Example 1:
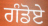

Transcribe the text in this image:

ਗੰਡੋਏ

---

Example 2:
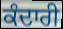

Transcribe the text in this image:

ਕੰਦਾਰੀ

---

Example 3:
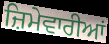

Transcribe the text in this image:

ਜ਼ਿਮੇਵਾਰੀਆਂ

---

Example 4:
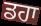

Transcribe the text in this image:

ਡਹਾ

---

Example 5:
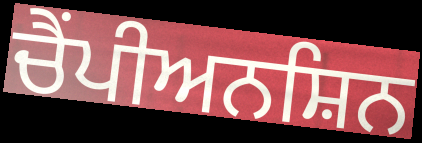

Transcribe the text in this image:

ਚੈਂਪੀਅਨਸ਼ਿਨ